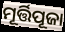
ମୂର୍ତ୍ତିପୂଜା